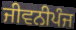
ਜੀਵਨੀਪੰਜ